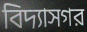
বিদ্যাসগর